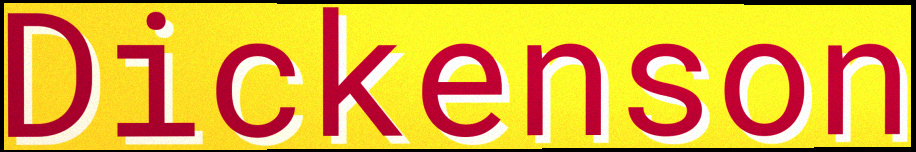
Dickenson